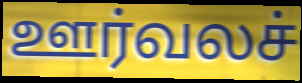
ஊர்வலச்